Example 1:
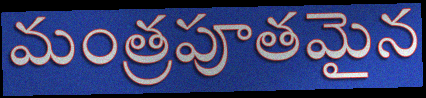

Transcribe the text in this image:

మంత్రపూతమైన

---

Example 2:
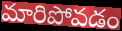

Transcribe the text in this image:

మారిపోవడం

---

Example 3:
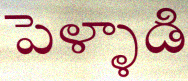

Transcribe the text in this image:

పెళ్ళాడి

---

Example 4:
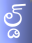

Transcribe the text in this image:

ల్డ్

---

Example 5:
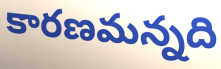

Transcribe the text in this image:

కారణమన్నది